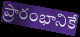
ప్రారంభానికే